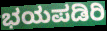
ಭಯಪಡಿರಿ